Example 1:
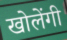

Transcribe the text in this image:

खोलेंगी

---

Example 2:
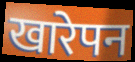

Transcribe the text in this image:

खारेपन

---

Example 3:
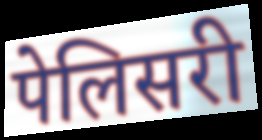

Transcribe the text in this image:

पेलिसरी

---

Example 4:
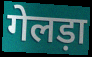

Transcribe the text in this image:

गेलड़ा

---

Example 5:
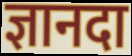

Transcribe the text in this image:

ज्ञानदा